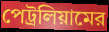
পেট্রলিয়ামের